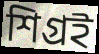
শিগ্রই